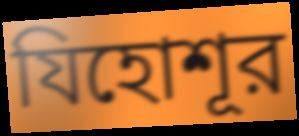
যিহোশূর